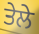
ਤੇਲੇ